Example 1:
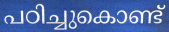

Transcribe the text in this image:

പഠിച്ചുകൊണ്ട്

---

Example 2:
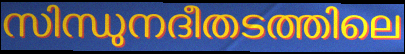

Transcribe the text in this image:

സിന്ധുനദീതടത്തിലെ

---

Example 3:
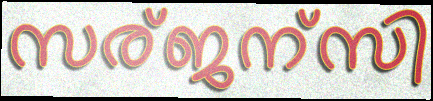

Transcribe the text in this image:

സര്ജന്സി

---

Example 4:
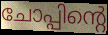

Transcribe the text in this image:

ചോപ്പിന്റെ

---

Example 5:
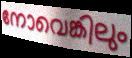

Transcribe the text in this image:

നോവെങ്കിലും